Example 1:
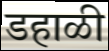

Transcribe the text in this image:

डहाळी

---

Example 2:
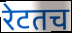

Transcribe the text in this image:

रेटतच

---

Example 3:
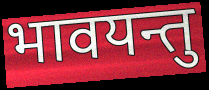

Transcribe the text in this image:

भावयन्तु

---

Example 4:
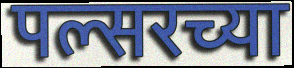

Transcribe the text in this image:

पल्सरच्या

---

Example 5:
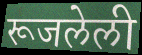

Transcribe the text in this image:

रूजलेली